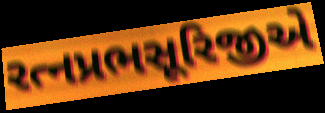
રત્નપ્રભસૂરિજીએ